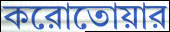
করোতোয়ার